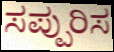
ಸಪ್ಪುರಿಸ